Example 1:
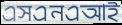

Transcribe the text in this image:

এসএনএআই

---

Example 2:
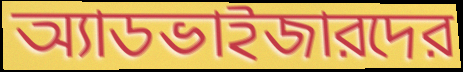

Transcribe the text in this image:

অ্যাডভাইজারদের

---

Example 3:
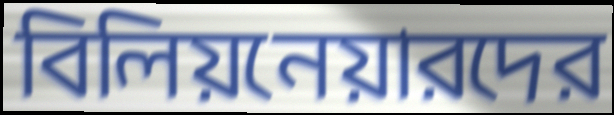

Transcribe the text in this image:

বিলিয়নেয়ারদের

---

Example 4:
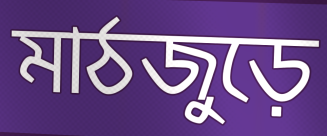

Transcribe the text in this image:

মাঠজুড়ে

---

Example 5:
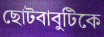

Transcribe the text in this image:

ছোটবাবুটিকে